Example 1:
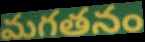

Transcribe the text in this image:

మగతనం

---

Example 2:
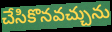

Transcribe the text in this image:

చేసికొనవచ్చును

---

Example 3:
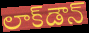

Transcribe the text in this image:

లాక్‌డౌన్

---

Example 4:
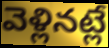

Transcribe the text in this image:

వెళ్లినట్లే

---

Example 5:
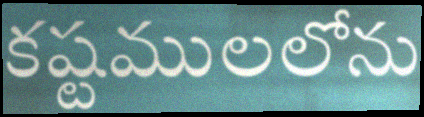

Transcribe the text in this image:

కష్టములలోను